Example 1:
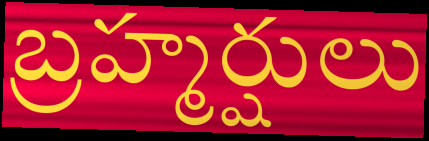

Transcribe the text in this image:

బ్రహ్మర్షులు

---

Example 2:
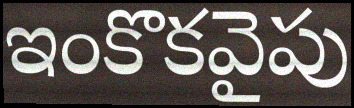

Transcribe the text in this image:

ఇంకొకవైపు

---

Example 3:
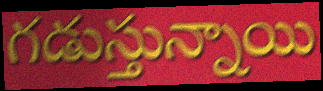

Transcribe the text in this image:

గడుస్తున్నాయి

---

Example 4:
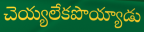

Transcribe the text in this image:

చెయ్యలేకపొయ్యాడు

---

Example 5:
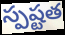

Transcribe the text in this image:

స్పష్టత